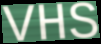
VHS